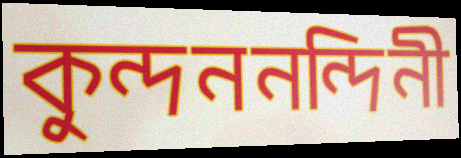
কুন্দননন্দিনী